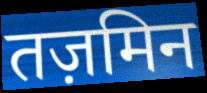
तज़मिन